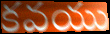
కవయు